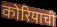
कोरियाची